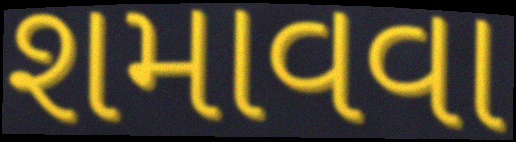
શમાવવા